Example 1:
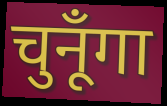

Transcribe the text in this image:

चुनूँगा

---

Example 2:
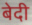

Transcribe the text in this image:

बेदी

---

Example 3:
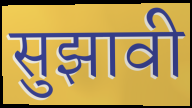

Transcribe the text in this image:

सुझावी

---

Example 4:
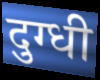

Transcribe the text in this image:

दुग्धी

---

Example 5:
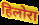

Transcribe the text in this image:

हिलोरा